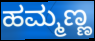
ಹಮ್ಮಣ್ಣ